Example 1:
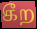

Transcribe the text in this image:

கீற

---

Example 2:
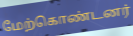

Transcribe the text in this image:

மேற்கொண்டனர்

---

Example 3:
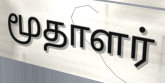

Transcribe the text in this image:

மூதாளர்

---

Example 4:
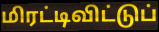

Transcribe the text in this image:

மிரட்டிவிட்டுப்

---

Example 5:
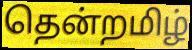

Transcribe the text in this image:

தென்றமிழ்